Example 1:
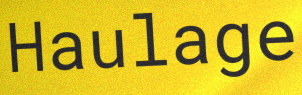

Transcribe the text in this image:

Haulage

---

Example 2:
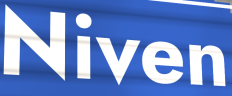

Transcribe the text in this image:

Niven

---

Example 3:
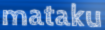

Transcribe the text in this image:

mataku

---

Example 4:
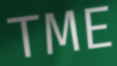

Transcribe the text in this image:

TME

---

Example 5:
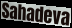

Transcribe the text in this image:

Sahadeva